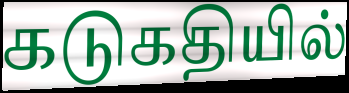
கடுகதியில்